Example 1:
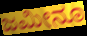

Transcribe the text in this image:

ಜಮೀನೂ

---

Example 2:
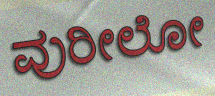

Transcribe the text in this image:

ವುರೀಲೋ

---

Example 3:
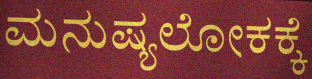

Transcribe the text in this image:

ಮನುಷ್ಯಲೋಕಕ್ಕೆ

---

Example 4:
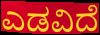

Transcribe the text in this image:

ಎಡವಿದೆ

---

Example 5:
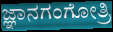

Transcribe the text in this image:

ಜ್ಞಾನಗಂಗೋತ್ರಿ